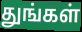
துங்கள்